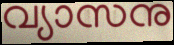
വ്യാസനു